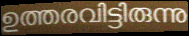
ഉത്തരവിട്ടിരുന്നു